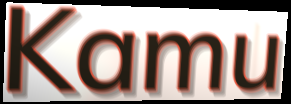
Kamu